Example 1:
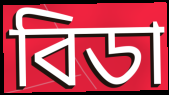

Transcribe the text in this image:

বিডা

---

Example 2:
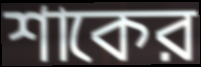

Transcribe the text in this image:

শাকের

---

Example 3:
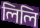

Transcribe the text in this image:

লিলি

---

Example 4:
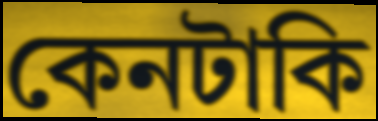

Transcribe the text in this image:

কেনটাকি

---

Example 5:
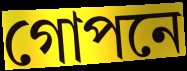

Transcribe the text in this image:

গোপনে